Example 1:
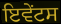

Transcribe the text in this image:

ਇਵੇੰਟਸ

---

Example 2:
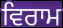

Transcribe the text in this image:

ਵਿਰਾਮ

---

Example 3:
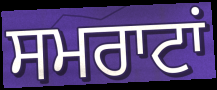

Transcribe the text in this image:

ਸਮਰਾਟਾਂ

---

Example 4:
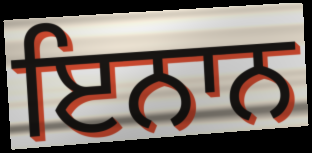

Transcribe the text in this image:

ਇਨਾਨ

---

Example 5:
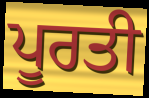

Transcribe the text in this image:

ਪੂਰਤੀ